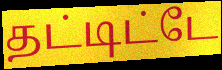
தட்டிட்டே